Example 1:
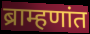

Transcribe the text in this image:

ब्राम्हणांत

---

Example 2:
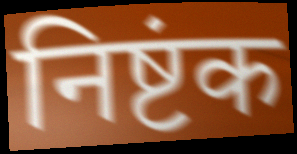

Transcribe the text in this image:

निष्टंक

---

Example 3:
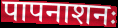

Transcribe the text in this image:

पापनाशनः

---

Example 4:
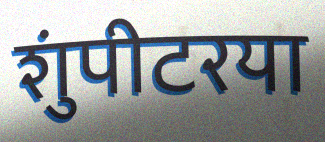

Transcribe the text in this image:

शुंपीटरया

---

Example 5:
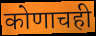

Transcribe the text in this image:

कोणाचही